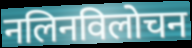
नलिनविलोचन